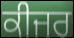
ਕੀਜਰ